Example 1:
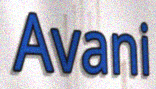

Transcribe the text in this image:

Avani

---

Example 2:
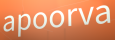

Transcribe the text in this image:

apoorva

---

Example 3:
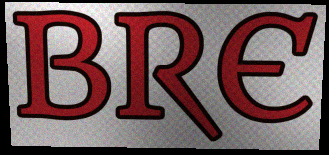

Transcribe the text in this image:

BRE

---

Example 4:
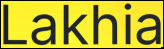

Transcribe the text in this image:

Lakhia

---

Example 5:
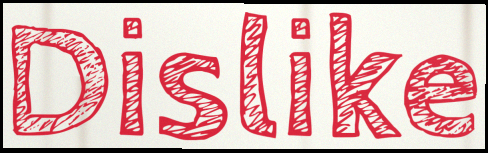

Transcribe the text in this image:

Dislike